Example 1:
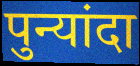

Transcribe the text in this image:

पुन्यांदा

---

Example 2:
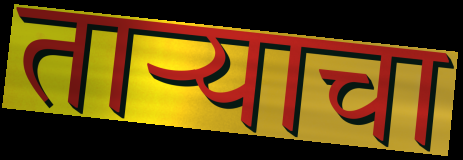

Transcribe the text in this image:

ताऱ्याचा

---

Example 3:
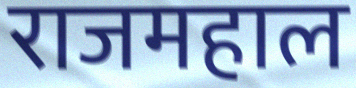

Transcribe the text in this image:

राजमहाल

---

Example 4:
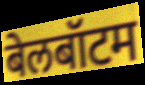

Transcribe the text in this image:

बेलबॉटम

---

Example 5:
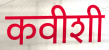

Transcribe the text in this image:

कवीशी